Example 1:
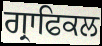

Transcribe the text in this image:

ਗ੍ਰਾਫਿਕਲ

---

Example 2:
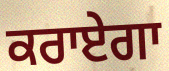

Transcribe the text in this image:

ਕਰਾਏਗਾ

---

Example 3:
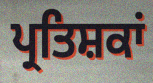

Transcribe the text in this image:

ਪ੍ਰਤਿਸ਼ਕਾਂ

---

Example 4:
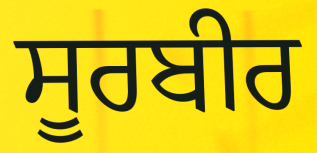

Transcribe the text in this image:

ਸੂਰਬੀਰ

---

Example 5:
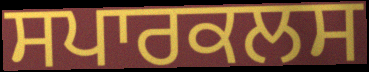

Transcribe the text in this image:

ਸਪਾਰਕਲਸ